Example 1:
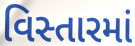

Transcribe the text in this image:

વિસ્તારમાં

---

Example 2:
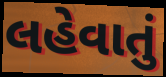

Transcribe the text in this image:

લહેવાતું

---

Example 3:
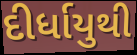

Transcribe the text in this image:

દીર્ધાયુથી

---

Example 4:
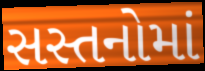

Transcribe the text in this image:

સસ્તનોમાં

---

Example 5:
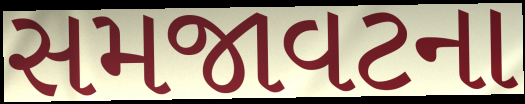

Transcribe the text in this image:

સમજાવટના